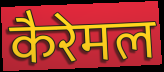
कैरेमल